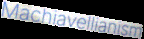
Machiavellianism